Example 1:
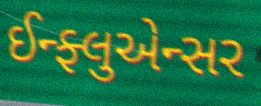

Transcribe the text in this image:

ઈન્ફ્લુએન્સર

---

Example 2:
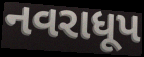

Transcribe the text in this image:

નવરાધૂપ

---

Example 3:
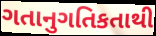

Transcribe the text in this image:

ગતાનુગતિકતાથી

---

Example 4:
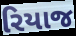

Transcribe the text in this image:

રિયાજ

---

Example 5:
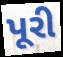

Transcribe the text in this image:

પૂરી